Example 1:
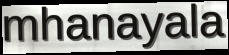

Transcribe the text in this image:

mhanayala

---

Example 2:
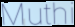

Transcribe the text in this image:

Muthi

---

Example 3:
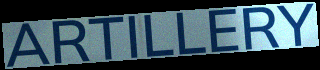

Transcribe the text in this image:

ARTILLERY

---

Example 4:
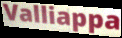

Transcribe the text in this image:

Valliappa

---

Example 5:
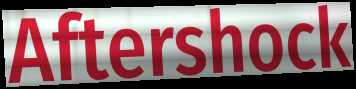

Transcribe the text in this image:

Aftershock